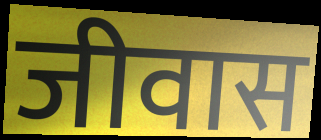
जीवास